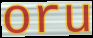
oru